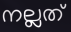
നല്ലത്